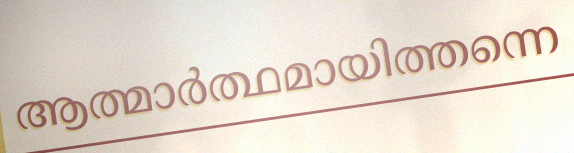
ആത്മാർത്ഥമായിത്തന്നെ